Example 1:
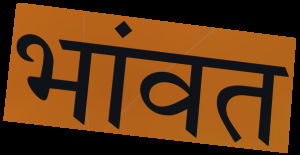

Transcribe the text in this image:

भांवत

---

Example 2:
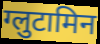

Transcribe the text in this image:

ग्लुटामिन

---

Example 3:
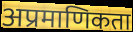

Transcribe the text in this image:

अप्रमाणिकता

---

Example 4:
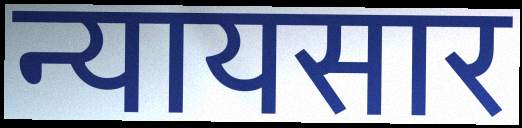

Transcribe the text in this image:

न्यायसार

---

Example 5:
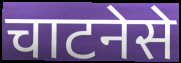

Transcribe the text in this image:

चाटनेसे